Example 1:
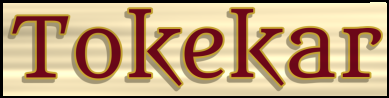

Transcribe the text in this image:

Tokekar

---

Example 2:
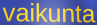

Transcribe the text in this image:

vaikunta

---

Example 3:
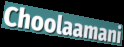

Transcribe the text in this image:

Choolaamani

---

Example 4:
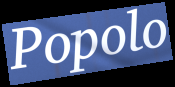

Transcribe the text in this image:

Popolo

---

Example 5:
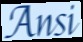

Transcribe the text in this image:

Ansi